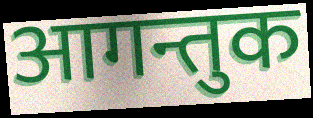
आगन्तुक